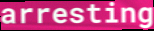
arresting